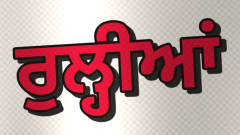
ਰੁਲ੍ਹੀਆਂ